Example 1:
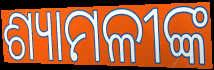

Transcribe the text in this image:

ଶ୍ୟାମଳୀଙ୍କ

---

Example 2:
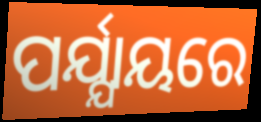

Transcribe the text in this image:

ପର୍ଯ୍ଯାୟରେ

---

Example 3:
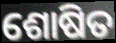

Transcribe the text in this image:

ଶୋଷିତ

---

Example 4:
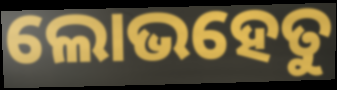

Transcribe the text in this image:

ଲୋଭହେତୁ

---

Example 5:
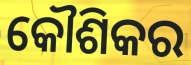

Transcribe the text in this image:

କୌଶିକର